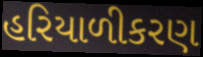
હરિયાળીકરણ